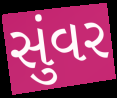
સુંવર